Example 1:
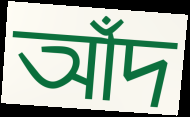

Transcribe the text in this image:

আঁদ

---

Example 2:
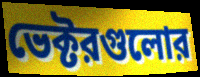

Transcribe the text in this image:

ভেক্টরগুলোর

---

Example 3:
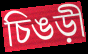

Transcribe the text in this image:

চিঙড়ী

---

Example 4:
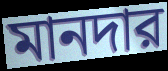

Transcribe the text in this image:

মানদার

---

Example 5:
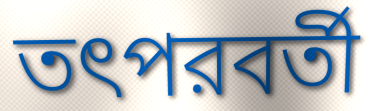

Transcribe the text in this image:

তৎপরবর্তী